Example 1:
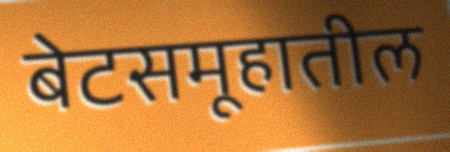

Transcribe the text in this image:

बेटसमूहातील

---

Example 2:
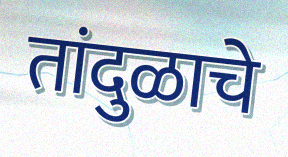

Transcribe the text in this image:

तांदुळाचे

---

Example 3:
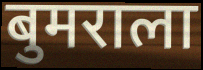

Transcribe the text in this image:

बुमराला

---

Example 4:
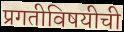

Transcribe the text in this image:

प्रगतीविषयीची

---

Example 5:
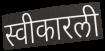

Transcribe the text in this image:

स्वीकारली